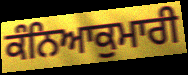
ਕੰਨਿਆਕੁਮਾਰੀ